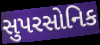
સુપરસોનિક